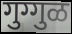
गुग्गुळ